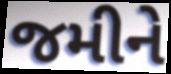
જમીને